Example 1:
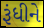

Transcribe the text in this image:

રૂંધીને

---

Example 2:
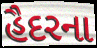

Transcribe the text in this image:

હૈદરના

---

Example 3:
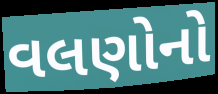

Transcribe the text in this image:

વલણોનો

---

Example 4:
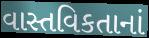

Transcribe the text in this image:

વાસ્તવિકતાનાં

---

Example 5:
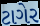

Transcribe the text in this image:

ટાગેર